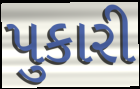
પુકારી